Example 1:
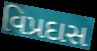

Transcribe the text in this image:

વિપ્રદાસ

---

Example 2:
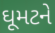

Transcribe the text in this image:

ઘૂમટને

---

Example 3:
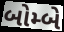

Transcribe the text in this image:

બોમ્બે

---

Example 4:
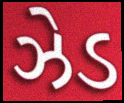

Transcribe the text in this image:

ઝેડ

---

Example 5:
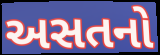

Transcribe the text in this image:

અસતનો